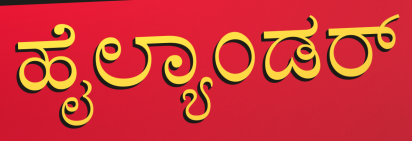
ಹೈಲ್ಯಾಂಡರ್